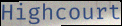
Highcourt